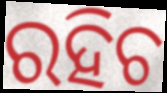
ରହିଚ